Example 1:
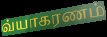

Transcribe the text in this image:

வ்யாகரணம்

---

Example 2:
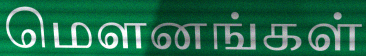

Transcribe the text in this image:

மௌனங்கள்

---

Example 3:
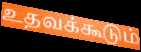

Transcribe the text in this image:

உதவக்கூடும்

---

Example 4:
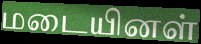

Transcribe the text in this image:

மடையினள்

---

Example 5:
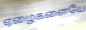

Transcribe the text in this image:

ஏழைகளையே